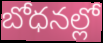
బోధనల్లో